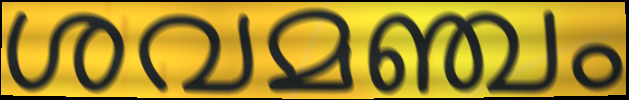
ശവമഞ്ചം